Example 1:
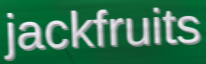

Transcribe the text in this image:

jackfruits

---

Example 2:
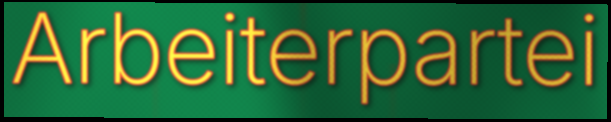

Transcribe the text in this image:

Arbeiterpartei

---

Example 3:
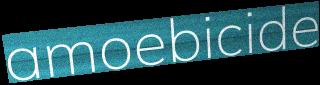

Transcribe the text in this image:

amoebicide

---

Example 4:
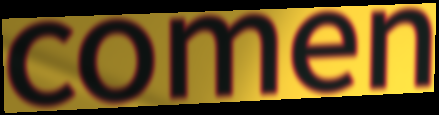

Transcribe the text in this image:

comen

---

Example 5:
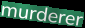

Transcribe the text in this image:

murderer